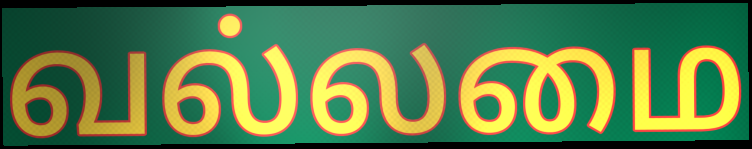
வல்லமை